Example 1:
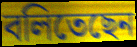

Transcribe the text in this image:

বলিতেছেন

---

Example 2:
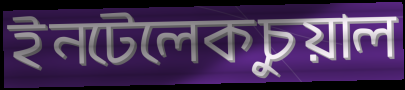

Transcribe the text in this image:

ইনটেলেকচুয়াল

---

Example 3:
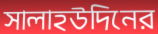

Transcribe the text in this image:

সালাহউদিনের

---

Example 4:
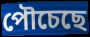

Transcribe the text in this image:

পৌচেছে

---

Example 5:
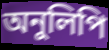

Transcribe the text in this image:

অনুলিপি